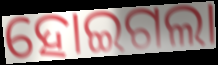
ହୋଇଗଲା